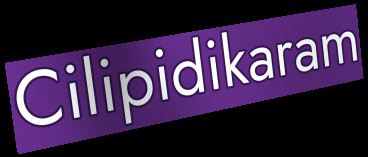
Cilipidikaram